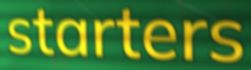
starters